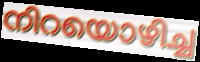
നിറയൊഴിച്ച